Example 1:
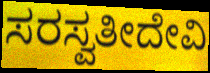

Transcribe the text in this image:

ಸರಸ್ವತೀದೇವಿ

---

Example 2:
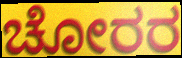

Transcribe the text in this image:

ಚೋರರ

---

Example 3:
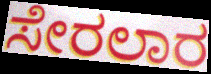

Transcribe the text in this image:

ಸೇರಲಾರ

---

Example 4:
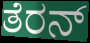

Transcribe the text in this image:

ತೆರನ್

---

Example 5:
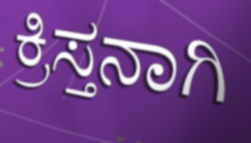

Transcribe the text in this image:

ಕ್ರಿಸ್ತನಾಗಿ